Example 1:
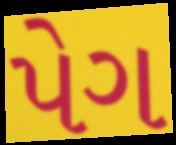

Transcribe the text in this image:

પેગ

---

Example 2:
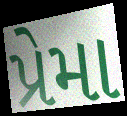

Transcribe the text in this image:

પ્રેમા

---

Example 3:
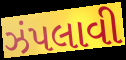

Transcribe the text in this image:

ઝંપલાવી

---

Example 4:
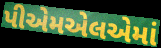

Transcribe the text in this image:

પીએમએલએમાં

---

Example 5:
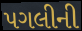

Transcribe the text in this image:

પગલીની